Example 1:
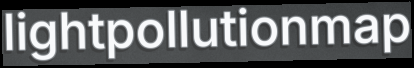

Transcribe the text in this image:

lightpollutionmap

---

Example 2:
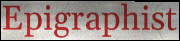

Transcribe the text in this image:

Epigraphist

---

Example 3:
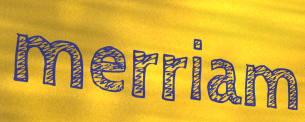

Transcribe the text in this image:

merriam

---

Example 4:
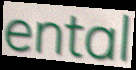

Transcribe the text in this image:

ental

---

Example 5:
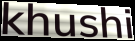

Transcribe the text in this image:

khushi